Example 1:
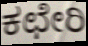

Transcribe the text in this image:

ಕಛೇರಿ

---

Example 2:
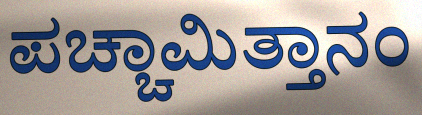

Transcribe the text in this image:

ಪಚ್ಚಾಮಿತ್ತಾನಂ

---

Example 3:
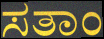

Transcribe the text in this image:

ಸತಾಂ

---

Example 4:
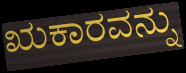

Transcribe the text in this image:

ಋಕಾರವನ್ನು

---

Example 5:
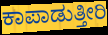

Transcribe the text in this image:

ಕಾಪಾಡುತ್ತೀರಿ